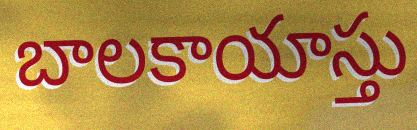
బాలకాయాస్తు